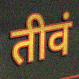
तीवं